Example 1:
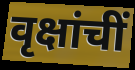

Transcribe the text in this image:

वृक्षांचीं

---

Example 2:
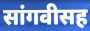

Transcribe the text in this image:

सांगवीसह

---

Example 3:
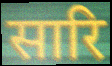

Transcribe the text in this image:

सारि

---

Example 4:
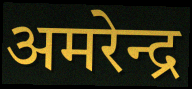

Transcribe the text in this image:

अमरेन्द्र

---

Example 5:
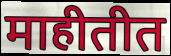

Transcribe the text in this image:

माहीतीत